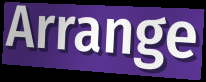
Arrange